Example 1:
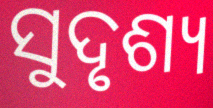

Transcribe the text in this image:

ସୁଦୃଶ୍ୟ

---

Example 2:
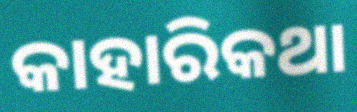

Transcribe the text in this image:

କାହାରିକଥା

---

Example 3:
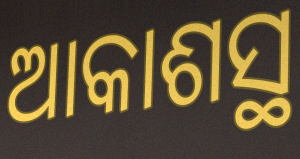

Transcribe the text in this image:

ଆକାଶସ୍ଥ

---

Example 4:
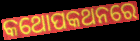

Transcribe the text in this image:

କଥୋପକଥନରେ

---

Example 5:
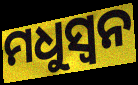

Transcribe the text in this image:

ମଧୁସ୍ୱନ